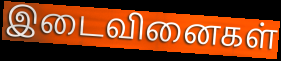
இடைவினைகள்